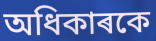
অধিকাৰকে